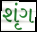
શૃંગ